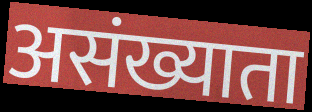
असंख्याता